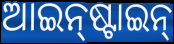
ଆଇନ୍‌ଷ୍ଟାଇନ୍